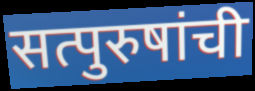
सत्पुरुषांची